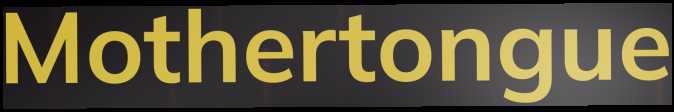
Mothertongue